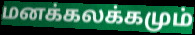
மனக்கலக்கமும்